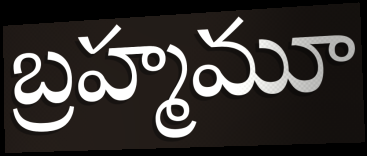
బ్రహ్మమూ